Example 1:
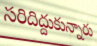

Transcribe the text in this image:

సరిదిద్దుకున్నారు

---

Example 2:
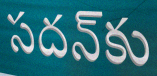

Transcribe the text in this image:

సదన్‌కు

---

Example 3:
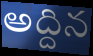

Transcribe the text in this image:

అద్దిన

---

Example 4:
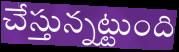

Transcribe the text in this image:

చేస్తున్నట్టుంది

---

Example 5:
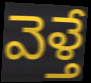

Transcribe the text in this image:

వెళ్తే